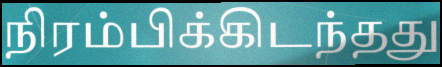
நிரம்பிக்கிடந்தது